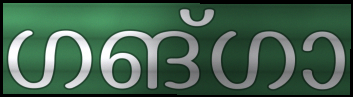
ഗങ്ഗാ